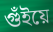
গুঁইয়ে